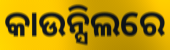
କାଉନ୍ସିଲରେ